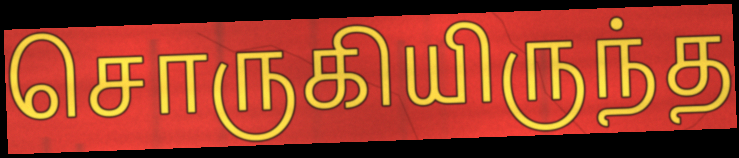
சொருகியிருந்த